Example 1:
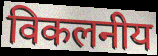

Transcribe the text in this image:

विकलनीय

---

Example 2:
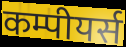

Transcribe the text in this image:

कम्पीयर्स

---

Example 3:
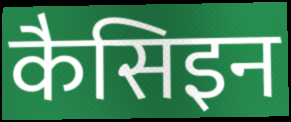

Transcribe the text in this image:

कैसिइन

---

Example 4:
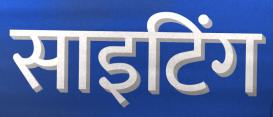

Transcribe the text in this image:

साइटिंग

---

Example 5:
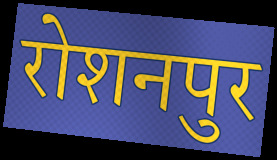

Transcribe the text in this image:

रोशनपुर